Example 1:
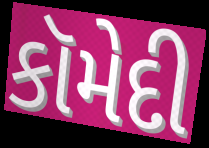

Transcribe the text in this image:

કૉમેદી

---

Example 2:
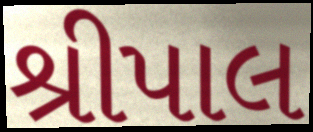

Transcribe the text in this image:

શ્રીપાલ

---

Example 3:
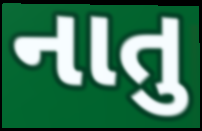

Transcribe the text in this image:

નાતુ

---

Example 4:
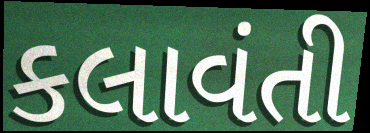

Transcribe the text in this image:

કલાવંતી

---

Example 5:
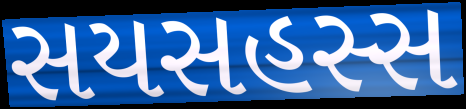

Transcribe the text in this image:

સયસહસ્સ